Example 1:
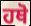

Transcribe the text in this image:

ਹਥੋ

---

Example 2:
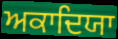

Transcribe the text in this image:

ਅਕਾਦਿਯਾ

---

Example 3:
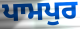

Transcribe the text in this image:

ਪਾਮਪੁਰ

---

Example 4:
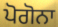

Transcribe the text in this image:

ਪੋਗੋਨਾ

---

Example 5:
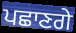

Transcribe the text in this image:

ਪਛਾਣਗੇ